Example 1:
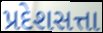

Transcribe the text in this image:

પ્રદેશસત્તા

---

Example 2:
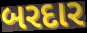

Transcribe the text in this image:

બરદાર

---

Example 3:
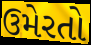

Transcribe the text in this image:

ઉમેરતો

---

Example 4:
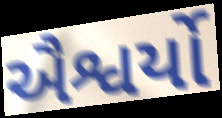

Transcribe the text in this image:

ઐશ્વર્યો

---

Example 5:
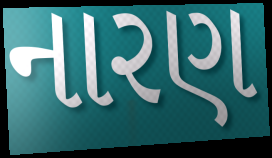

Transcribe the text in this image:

નારણ